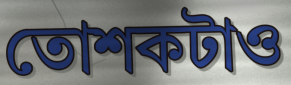
তোশকটাও